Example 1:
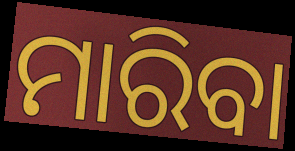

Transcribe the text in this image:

ମାରିବା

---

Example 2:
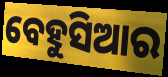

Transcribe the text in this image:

ବେହୁସିଆର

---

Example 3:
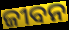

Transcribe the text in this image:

ଜୀବନ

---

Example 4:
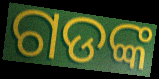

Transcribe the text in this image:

ଗଡଙ୍କ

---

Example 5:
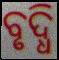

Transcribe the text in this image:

ବୃଦ୍ଧି